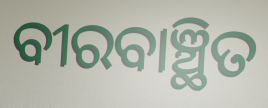
ବୀରବାଞ୍ଛିତ